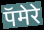
पॅमेरे